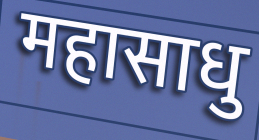
महासाधु